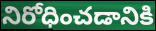
నిరోధించడానికి